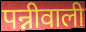
पन्नीवाली